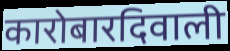
कारोबारदिवाली